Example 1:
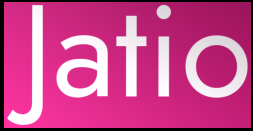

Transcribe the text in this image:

Jatio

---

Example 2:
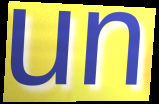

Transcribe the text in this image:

un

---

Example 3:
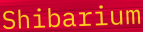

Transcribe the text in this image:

Shibarium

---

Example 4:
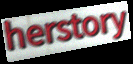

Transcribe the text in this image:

herstory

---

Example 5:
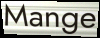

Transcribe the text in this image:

Mange